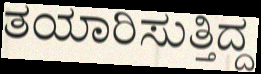
ತಯಾರಿಸುತ್ತಿದ್ದ